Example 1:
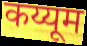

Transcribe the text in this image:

कय्यूम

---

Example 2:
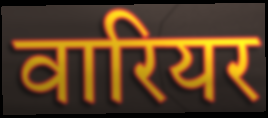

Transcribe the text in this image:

वारियर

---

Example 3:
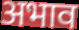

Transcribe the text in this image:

अभाव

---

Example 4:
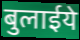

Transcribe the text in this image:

बुलाईये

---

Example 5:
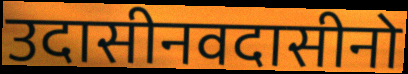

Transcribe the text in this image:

उदासीनवदासीनो